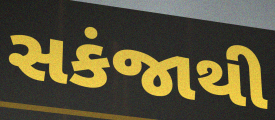
સકંજાથી